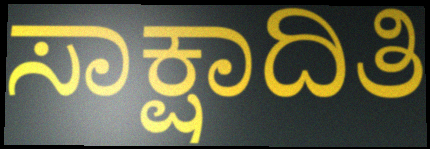
ಸಾಕ್ಷಾದಿತಿ